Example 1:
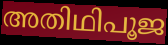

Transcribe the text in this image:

അതിഥിപൂജ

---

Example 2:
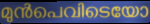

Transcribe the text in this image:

മുൻപെവിടെയോ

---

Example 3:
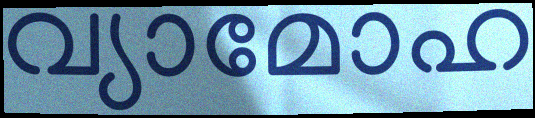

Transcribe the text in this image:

വ്യാമോഹ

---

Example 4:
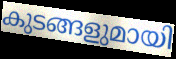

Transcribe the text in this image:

കുടങ്ങളുമായി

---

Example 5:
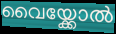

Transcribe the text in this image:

വൈയ്ക്കോൽ